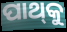
ପାଥ୍‌କୁ